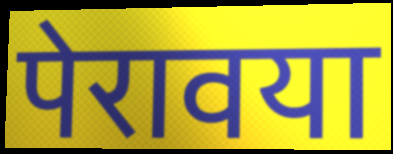
पेरावया